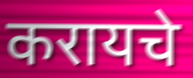
करायचे